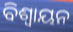
ବିଶ୍ଵାୟନ